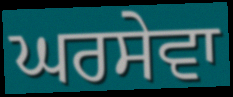
ਘਰਸੇਵਾ